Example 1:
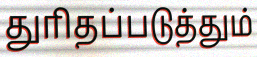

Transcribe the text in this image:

துரிதப்படுத்தும்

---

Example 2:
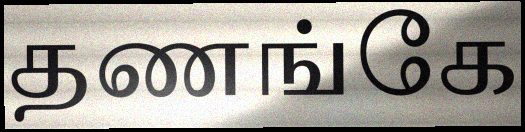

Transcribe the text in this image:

தணங்கே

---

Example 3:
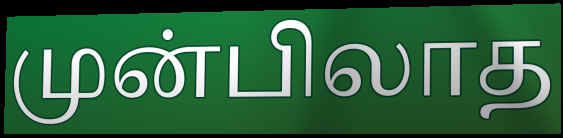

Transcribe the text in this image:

முன்பிலாத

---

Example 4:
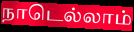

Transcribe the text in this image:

நாடெல்லாம்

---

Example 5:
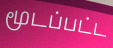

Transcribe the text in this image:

மூடப்பட்ட